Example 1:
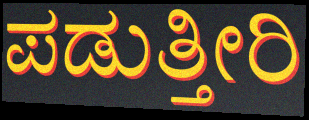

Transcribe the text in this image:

ಪಡುತ್ತೀರಿ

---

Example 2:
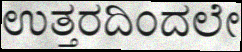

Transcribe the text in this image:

ಉತ್ತರದಿಂದಲೇ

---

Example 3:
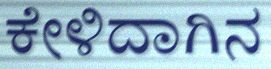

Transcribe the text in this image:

ಕೇಳಿದಾಗಿನ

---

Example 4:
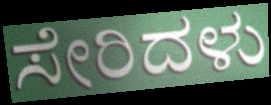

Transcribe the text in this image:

ಸೇರಿದಳು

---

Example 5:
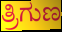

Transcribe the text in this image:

ತ್ರಿಗುಣ